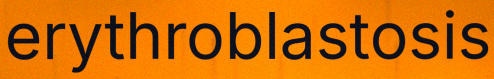
erythroblastosis